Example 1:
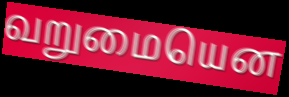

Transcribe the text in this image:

வறுமையென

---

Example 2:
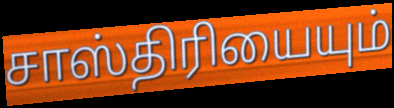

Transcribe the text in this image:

சாஸ்திரியையும்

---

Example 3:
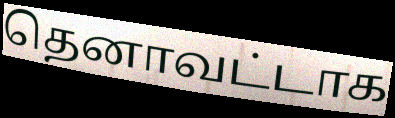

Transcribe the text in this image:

தெனாவட்டாக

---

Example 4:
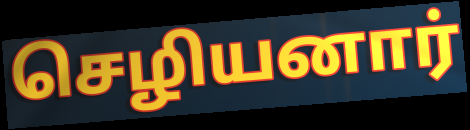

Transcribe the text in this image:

செழியனார்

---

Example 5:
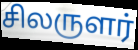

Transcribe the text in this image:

சிலருளர்